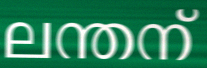
ലന്തന്